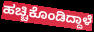
ಹಚ್ಚಿಕೊಂಡಿದ್ದಾಳೆ